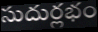
సుదుర్లభం